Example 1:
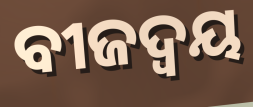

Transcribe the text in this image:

ବୀଜଦ୍ଵୟ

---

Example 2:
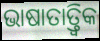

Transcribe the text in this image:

ଭାଷାତାତ୍ତ୍ୱିକ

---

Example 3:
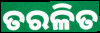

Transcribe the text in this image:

ତରଳିତ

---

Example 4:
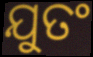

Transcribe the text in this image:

ଯୁତଂ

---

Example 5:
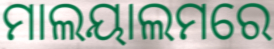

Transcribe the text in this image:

ମାଲୟାଲମରେ